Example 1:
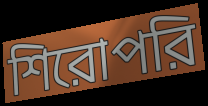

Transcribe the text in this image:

শিরোপরি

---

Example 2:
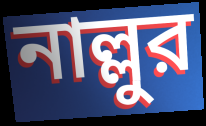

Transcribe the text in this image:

নাল্লুর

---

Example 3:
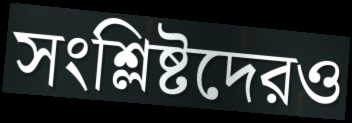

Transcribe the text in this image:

সংশ্লিষ্টদেরও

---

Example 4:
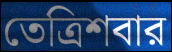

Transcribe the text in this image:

তেত্রিশবার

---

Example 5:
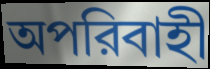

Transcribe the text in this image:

অপরিবাহী